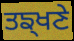
ਤਙ੍ਖਣੇ